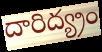
దారిద్య్రం